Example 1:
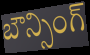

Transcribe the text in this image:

బౌన్సింగ్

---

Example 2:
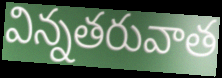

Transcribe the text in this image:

విన్నతరువాత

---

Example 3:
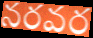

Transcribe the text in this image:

నరవర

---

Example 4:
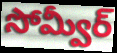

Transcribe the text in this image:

సోమ్వీర్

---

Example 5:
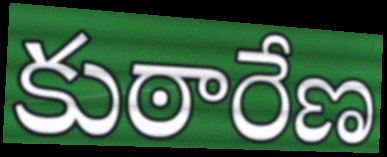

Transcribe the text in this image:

కుఠారేణ